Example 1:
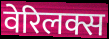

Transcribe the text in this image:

वेरिलक्स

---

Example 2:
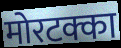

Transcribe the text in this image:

मोरटक्का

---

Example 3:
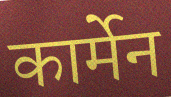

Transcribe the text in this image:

कार्मेन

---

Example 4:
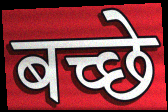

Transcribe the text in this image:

बच्छे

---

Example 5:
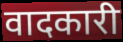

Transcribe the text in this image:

वादकारी